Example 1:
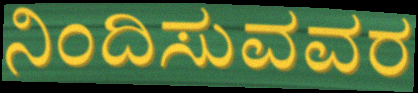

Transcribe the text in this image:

ನಿಂದಿಸುವವರ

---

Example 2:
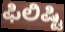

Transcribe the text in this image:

ಫಿಲಿಷ್ಟಿ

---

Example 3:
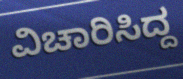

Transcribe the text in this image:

ವಿಚಾರಿಸಿದ್ದ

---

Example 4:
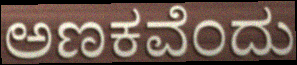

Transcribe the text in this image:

ಅಣಕವೆಂದು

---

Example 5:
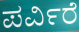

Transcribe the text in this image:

ಪರ್ವಿರೆ